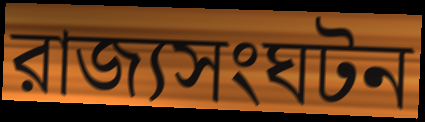
রাজ্যসংঘটন